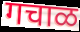
गचाळ